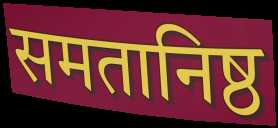
समतानिष्ठ